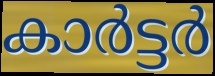
കാർട്ടർ